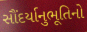
સૌંદર્યાનુભૂતિનો